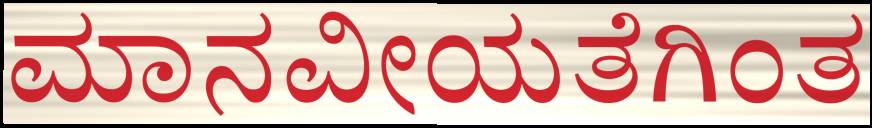
ಮಾನವೀಯತೆಗಿಂತ